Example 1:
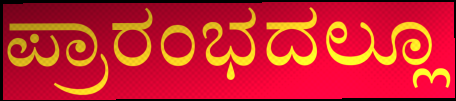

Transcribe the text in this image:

ಪ್ರಾರಂಭದಲ್ಲೂ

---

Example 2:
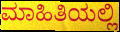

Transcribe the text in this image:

ಮಾಹಿತಿಯಲ್ಲಿ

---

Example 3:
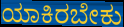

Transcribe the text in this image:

ಯಾಕಿರಬೇಕು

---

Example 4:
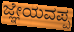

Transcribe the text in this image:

ಜ್ಞೇಯವಪ್ಪ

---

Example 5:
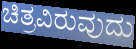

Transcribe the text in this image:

ಚಿತ್ರವಿರುವುದು